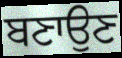
ਬਣਾਉਣ